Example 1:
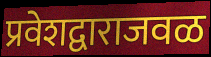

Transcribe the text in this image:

प्रवेशद्वाराजवळ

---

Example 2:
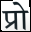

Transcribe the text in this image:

प्रो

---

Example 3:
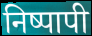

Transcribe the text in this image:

निष्पापी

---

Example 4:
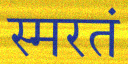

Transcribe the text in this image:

स्मरतं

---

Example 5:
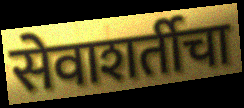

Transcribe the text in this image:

सेवाशर्तीचा